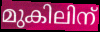
മുകിലിന്